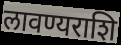
लावण्यराशि